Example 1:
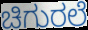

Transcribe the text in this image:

ಚಿಗುರಲೆ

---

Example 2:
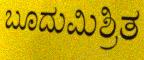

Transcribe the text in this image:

ಬೂದುಮಿಶ್ರಿತ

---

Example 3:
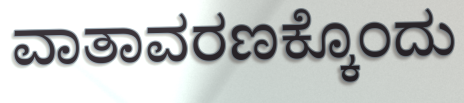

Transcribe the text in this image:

ವಾತಾವರಣಕ್ಕೊಂದು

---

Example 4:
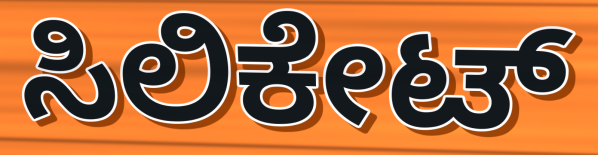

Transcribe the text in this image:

ಸಿಲಿಕೇಟ್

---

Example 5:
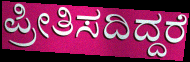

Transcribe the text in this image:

ಪ್ರೀತಿಸದಿದ್ದರೆ